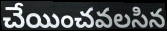
చేయించవలసిన